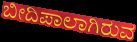
ಬೀದಿಪಾಲಾಗಿರುವ